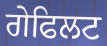
ਗੇਫਿਲਟ